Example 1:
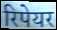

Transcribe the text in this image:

रिपेयर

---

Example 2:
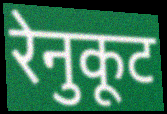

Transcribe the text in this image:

रेनुकूट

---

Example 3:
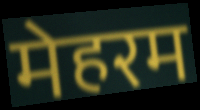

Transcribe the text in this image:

मेहरम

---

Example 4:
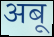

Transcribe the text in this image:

अबू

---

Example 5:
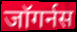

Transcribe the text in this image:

जॉगर्नस